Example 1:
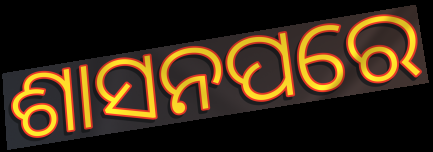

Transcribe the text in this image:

ଶାସନପରେ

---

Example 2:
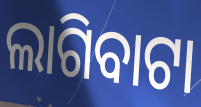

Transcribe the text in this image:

ଲାଗିବାଟା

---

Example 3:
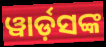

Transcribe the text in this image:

ୱାର୍ଡ଼ସଙ୍କ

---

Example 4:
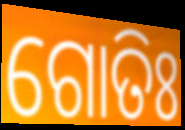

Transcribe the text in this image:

ଗୋତିଃ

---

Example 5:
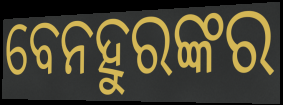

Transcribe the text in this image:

ବେନହୁରଙ୍କର